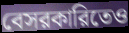
বেসরকারিতেও